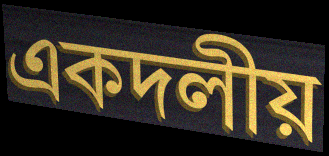
একদলীয়